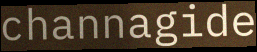
channagide